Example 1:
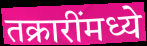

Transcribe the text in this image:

तक्रारींमध्ये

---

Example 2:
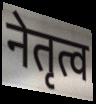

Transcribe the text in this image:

नेतृत्‍व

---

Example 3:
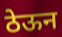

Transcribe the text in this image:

ठेऊन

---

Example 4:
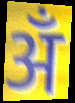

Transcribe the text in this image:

अँ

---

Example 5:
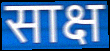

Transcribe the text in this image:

साक्ष